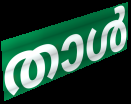
താൾ